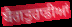
ਬੈਗਤੁਹਾਡੀਆਂ